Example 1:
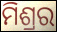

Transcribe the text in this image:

ମିଶ୍ରର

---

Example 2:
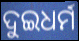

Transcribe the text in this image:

ଦୁଇଧର୍ମ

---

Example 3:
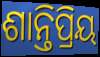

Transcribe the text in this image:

ଶାନ୍ତିପ୍ରିୟ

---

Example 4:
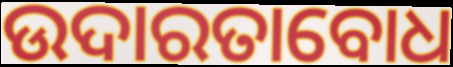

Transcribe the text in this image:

ଉଦାରତାବୋଧ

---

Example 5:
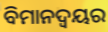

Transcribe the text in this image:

ବିମାନଦ୍ବୟର